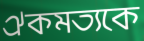
ঐকমত্যকে